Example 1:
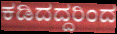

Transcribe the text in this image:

ಕಡಿದದ್ದರಿಂದ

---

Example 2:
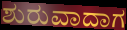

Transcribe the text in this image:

ಶುರುವಾದಾಗ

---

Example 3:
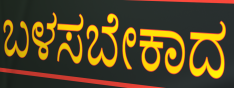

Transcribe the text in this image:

ಬಳಸಬೇಕಾದ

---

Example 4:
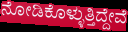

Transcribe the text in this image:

ನೋಡಿಕೊಳ್ಳುತ್ತಿದ್ದೇವೆ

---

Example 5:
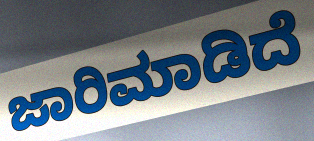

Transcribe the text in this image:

ಜಾರಿಮಾಡಿದೆ